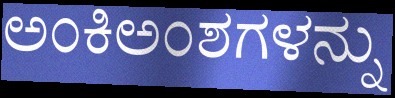
ಅಂಕಿಅಂಶಗಳನ್ನು